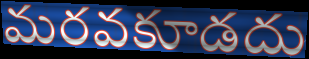
మరవకూడదు